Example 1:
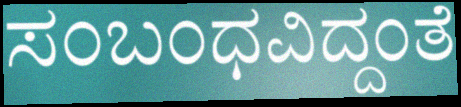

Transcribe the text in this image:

ಸಂಬಂಧವಿದ್ದಂತೆ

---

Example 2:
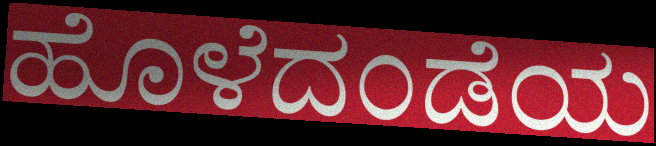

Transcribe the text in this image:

ಹೊಳೆದಂಡೆಯ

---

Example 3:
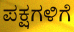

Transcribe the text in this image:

ಪಕ್ಷಗಳಿಗೆ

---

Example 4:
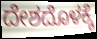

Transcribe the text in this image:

ದೇಶದೊಳಕ್ಕೆ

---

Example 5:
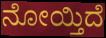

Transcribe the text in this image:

ನೋಯ್ತಿದೆ